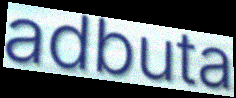
adbuta